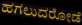
ಹಗಲುದರೋಡೆ